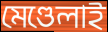
মেণ্ডেলাই